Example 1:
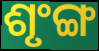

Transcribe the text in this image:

ଶୃଂଙ୍ଗ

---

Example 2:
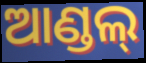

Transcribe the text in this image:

ଆଣ୍ଡଲ୍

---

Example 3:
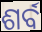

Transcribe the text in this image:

ଶର୍ବ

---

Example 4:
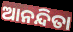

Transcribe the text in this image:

ଆନନ୍ଦିତା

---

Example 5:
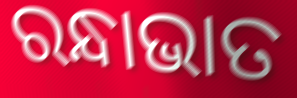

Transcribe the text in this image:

ରନ୍ଧାଭାତ